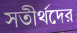
সতীর্থদের